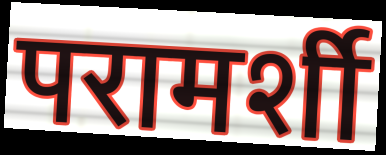
परामर्शी